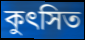
কুৎসিত